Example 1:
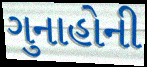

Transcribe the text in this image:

ગુનાહોની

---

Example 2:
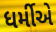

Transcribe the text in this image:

ધર્મીએ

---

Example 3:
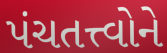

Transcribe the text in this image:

પંચતત્ત્વોને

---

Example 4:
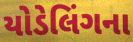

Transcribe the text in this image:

યોડેલિંગના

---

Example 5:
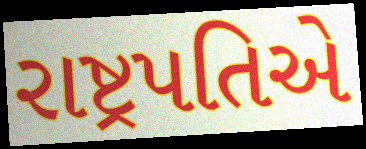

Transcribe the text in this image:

રાષ્ટ્રપતિએ